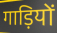
गाड़ियों